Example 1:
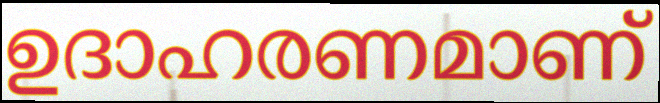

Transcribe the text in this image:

ഉദാഹരണമാണ്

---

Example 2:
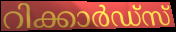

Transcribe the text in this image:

റിക്കാർഡ്സ്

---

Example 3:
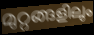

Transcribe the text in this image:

മുറ്റങ്ങളിലും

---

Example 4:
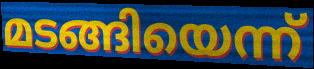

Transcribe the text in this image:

മടങ്ങിയെന്ന്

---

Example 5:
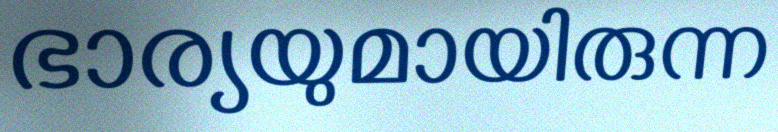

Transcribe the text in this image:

ഭാര്യയുമായിരുന്ന